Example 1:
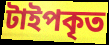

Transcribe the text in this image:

টাইপকৃত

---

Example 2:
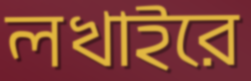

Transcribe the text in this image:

লখাইরে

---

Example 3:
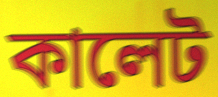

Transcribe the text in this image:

কালেট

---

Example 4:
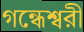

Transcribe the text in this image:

গন্ধেশ্বরী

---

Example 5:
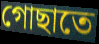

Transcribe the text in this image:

গোছাতে